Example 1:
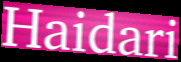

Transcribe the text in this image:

Haidari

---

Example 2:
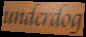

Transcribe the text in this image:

underdog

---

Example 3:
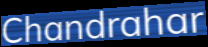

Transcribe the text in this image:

Chandrahar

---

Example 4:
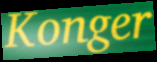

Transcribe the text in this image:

Konger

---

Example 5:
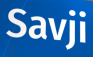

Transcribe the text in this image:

Savji